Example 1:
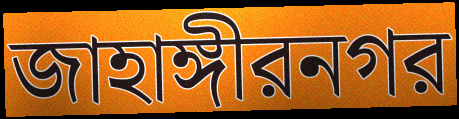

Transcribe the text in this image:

জাহাঙ্গীরনগর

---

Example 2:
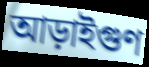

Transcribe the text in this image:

আড়াইগুণ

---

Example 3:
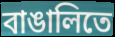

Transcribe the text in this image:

বাঙালিতে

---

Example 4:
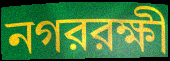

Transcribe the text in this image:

নগররক্ষী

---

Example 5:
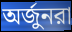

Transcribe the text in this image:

অর্জুনরা